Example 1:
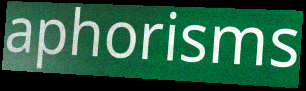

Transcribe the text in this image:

aphorisms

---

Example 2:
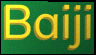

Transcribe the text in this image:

Baiji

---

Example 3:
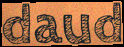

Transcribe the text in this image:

daud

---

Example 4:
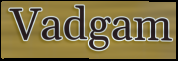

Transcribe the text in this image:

Vadgam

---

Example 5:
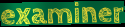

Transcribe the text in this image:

examiner